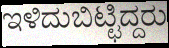
ಇಳಿದುಬಿಟ್ಟಿದ್ದರು